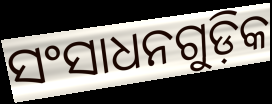
ସଂସାଧନଗୁଡ଼ିକ